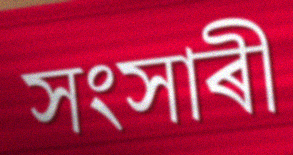
সংসাৰী